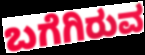
ಬಗೆಗಿರುವ